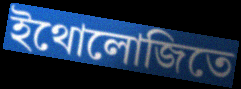
ইথোলোজিতে